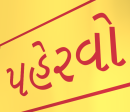
પહેરવો